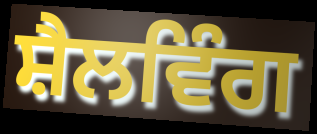
ਸ਼ੈਲਵਿੰਗ